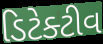
ડિટેક્ટીવ